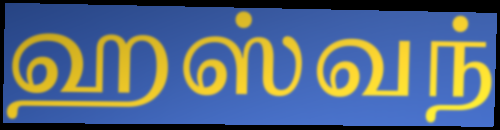
ஹஸ்வந்